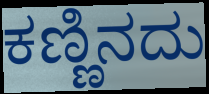
ಕಣ್ಣಿನದು